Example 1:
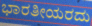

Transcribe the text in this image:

ಭಾರತೀಯರದು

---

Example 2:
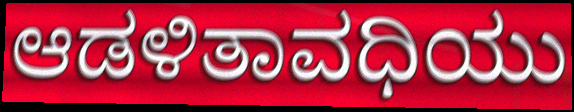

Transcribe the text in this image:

ಆಡಳಿತಾವಧಿಯು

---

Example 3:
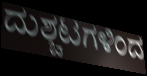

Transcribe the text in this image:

ದುಶ್ಚಟಗಳಿಂದ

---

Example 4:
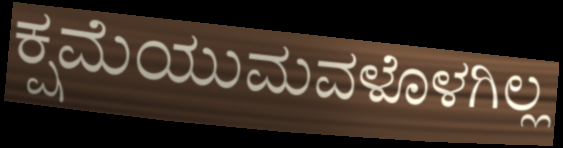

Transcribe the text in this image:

ಕ್ಷಮೆಯುಮವಳೊಳಗಿಲ್ಲ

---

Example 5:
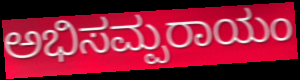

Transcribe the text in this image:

ಅಭಿಸಮ್ಪರಾಯಂ